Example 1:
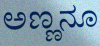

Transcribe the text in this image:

ಅಣ್ಣನೂ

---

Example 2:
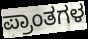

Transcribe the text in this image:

ಪ್ರಾಂತಗಳ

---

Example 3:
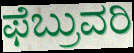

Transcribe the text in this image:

ಫೆಬ್ರುವರಿ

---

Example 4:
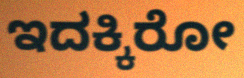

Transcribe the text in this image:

ಇದಕ್ಕಿರೋ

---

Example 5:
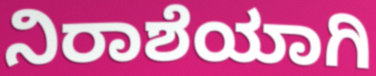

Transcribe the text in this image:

ನಿರಾಶೆಯಾಗಿ